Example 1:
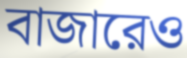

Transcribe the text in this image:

বাজারেও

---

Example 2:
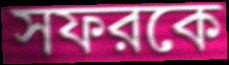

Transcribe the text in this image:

সফরকে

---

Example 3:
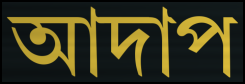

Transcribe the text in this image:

আদাপ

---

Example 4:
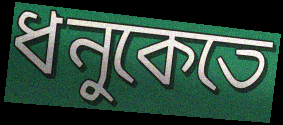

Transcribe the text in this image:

ধনুকেতে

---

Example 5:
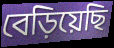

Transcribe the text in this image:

বেড়িয়েছি